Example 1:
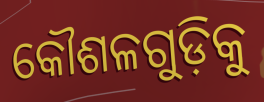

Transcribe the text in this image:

କୌଶଳଗୁଡ଼ିକୁ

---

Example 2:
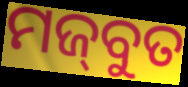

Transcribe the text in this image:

ମଜ୍‌ବୁତ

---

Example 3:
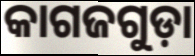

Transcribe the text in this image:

କାଗଜଗୁଡ଼ା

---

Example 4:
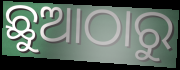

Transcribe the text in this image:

ଛୁଆଠାରୁ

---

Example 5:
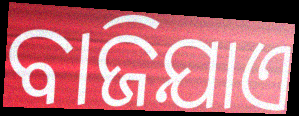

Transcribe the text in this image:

ବାଜିଯାଏ